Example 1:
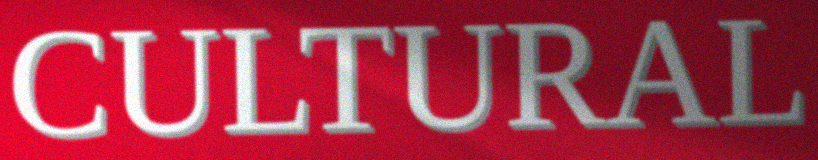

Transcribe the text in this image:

CULTURAL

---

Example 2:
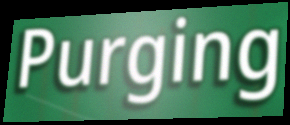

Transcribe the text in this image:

Purging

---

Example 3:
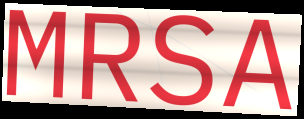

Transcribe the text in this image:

MRSA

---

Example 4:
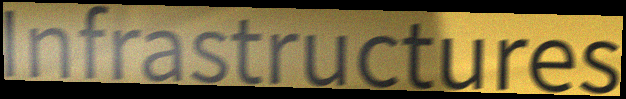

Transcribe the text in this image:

Infrastructures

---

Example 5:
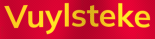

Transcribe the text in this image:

Vuylsteke